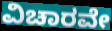
ವಿಚಾರವೇ